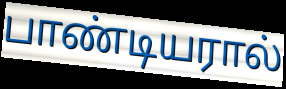
பாண்டியரால்